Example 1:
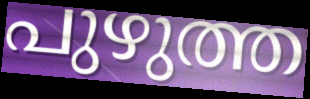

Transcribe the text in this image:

പുഴുത്ത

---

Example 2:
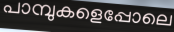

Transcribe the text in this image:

പാമ്പുകളെപ്പോലെ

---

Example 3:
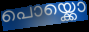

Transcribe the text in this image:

പൊയ്ക്കൊ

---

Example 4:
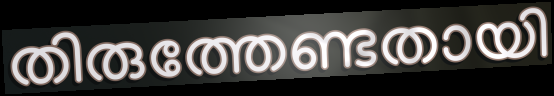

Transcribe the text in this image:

തിരുത്തേണ്ടതായി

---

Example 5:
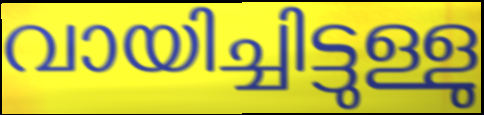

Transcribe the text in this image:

വായിച്ചിട്ടുള്ളു